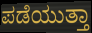
ಪಡೆಯುತ್ತಾ